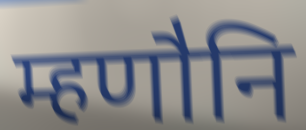
म्हणौनि